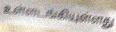
உள்ளடங்கியுள்ளது